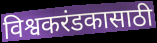
विश्वकरंडकासाठी